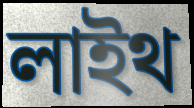
লাইথ